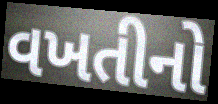
વખતીનો